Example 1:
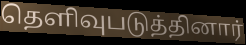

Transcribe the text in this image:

தெளிவுபடுத்தினார்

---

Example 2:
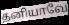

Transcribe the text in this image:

தனியாவே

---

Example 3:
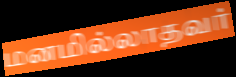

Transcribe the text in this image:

மனமில்லாதவர்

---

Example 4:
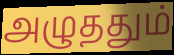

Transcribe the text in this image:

அழுததும்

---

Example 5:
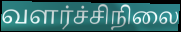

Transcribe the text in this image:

வளர்ச்சிநிலை